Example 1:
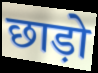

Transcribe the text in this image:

छाड़ो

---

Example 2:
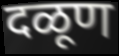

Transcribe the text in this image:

दळूण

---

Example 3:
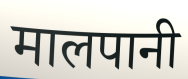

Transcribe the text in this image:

मालपानी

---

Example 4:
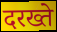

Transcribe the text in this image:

दरख्ते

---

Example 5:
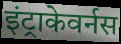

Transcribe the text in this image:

इंट्राकेवर्नस